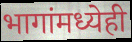
भागांमध्येही